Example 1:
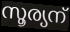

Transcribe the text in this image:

സൂര്യന്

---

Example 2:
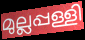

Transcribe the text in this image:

മുല്ലപ്പള്ളി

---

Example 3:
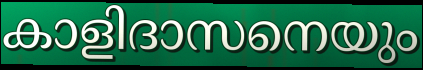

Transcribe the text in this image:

കാളിദാസനെയും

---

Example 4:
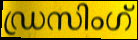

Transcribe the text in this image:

ഡ്രസിംഗ്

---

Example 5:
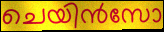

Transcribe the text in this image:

ചെയിൻസോ